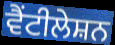
ਵੈਂਟੀਲੇਸ਼ਨ